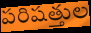
పరిషత్తుల